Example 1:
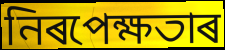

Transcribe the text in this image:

নিৰপেক্ষতাৰ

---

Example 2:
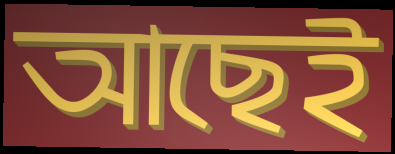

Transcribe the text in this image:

আছেই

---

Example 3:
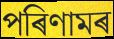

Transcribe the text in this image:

পৰিণামৰ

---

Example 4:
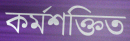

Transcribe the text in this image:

কৰ্মশক্তিত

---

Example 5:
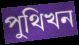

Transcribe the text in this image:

পুথিখন